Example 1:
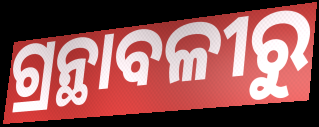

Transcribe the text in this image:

ଗ୍ରନ୍ଥାବଳୀରୁ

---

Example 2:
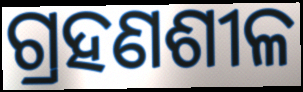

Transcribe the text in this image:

ଗ୍ରହଣଶୀଳ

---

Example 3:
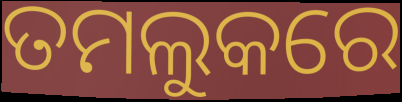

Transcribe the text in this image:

ତମଲୁକରେ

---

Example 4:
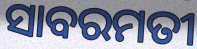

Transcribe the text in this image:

ସାବରମତୀ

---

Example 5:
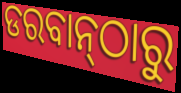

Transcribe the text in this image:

ଡରବାନ୍‌ଠାରୁ